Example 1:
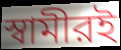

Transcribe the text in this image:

স্বামীরই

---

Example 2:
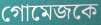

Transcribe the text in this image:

গোমেজকে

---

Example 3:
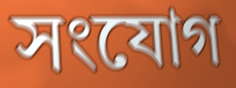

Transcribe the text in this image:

সংযোগ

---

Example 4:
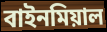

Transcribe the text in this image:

বাইনমিয়াল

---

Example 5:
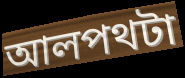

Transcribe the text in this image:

আলপথটা